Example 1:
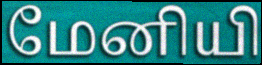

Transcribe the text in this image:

மேனியி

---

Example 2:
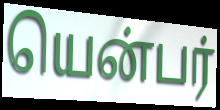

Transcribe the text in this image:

யென்பர்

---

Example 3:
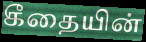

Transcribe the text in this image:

கீதையின்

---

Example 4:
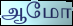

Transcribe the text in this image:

ஆமோ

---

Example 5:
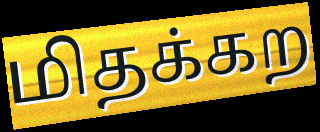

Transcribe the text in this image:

மிதக்கற